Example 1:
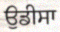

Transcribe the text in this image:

ਉਡੀਸਾ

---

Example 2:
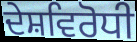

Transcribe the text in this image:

ਦੇਸ਼ਵਿਰੋਧੀ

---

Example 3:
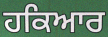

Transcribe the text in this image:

ਹਕਿਆਰ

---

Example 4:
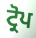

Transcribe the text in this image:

ਟ੍ਰੋਪ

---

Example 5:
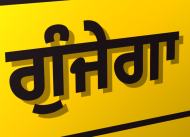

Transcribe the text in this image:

ਗੁੰਜੇਗਾ